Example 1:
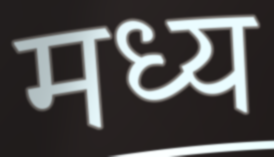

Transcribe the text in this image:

मध्य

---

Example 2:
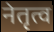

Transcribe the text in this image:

नेतृत्‍व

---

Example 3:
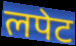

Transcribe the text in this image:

लपेट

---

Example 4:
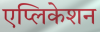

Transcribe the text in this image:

एप्लिकेशन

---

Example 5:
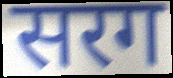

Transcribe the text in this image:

सरग